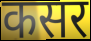
कसर